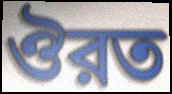
ঔরত